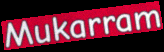
Mukarram